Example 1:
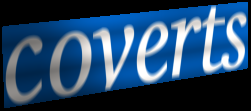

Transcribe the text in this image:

coverts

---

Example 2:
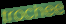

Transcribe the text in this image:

trochee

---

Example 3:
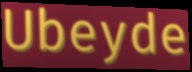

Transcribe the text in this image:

Ubeyde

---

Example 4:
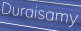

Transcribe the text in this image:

Duraisamy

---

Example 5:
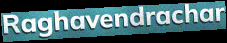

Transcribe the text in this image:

Raghavendrachar